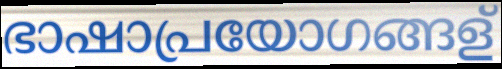
ഭാഷാപ്രയോഗങ്ങള്